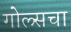
गोल्सचा